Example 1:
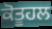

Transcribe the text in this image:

ਕੋਤੂਹਲ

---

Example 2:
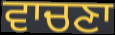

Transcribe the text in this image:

ਵਾਚਣਾ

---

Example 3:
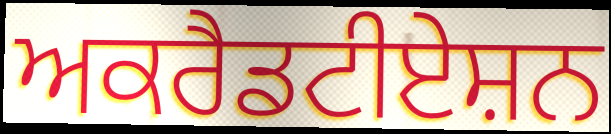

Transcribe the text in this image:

ਅਕਰੈਡਟੀਏਸ਼ਨ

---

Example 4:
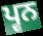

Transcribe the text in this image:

ਪ੍ਵਨ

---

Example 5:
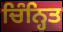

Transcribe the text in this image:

ਚਿੰਨ੍ਹਿਤ